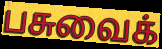
பசுவைக்